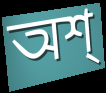
অশ্